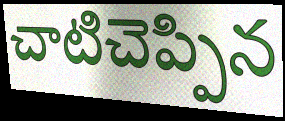
చాటిచెప్పిన